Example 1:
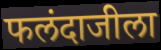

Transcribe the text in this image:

फलंदाजीला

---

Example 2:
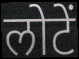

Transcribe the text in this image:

लोटें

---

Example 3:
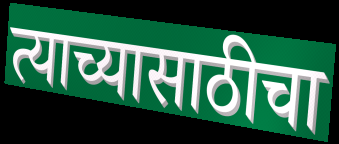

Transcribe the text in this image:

त्याच्यासाठीचा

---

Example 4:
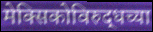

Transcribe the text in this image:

मेक्सिकोविरुद्धच्या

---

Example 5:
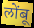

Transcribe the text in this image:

लोंबू